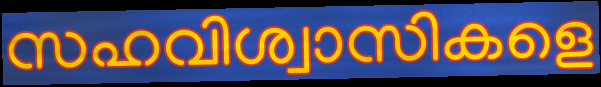
സഹവിശ്വാസികളെ